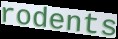
rodents